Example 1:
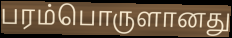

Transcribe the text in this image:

பரம்பொருளானது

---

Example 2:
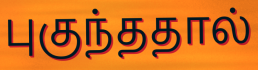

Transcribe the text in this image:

புகுந்ததால்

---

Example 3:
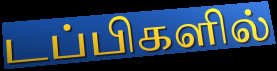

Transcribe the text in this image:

டப்பிகளில்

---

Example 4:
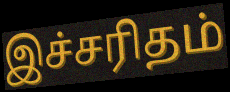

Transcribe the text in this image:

இச்சரிதம்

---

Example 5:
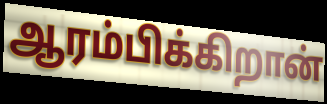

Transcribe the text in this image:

ஆரம்பிக்கிறான்